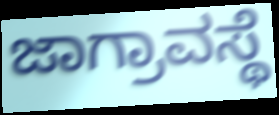
ಜಾಗ್ರಾವಸ್ಥೆ